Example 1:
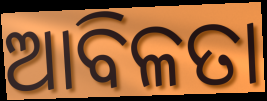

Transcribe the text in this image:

ଆବିଳତା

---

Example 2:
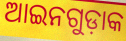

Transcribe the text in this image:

ଆଇନଗୁଡ଼ାକ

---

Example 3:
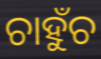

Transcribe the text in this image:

ଚାହୁଁଚ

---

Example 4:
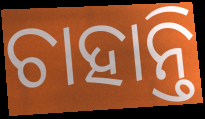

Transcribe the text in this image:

ଚାହାନ୍ତି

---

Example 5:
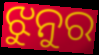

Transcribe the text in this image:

ଝୁନୁର